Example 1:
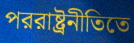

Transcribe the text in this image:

পররাষ্ট্রনীতিতে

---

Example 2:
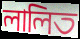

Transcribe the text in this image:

লালিত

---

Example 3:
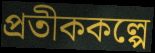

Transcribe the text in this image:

প্রতীককল্পে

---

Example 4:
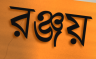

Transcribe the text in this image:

রঞ্জয়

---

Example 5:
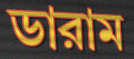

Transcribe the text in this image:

ডারাম